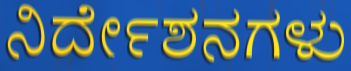
ನಿರ್ದೇಶನಗಳು